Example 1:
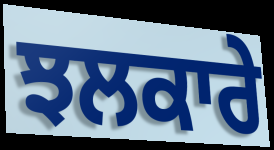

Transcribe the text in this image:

ਝਲਕਾਰੇ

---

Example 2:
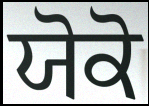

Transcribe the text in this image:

ਯੋਕੋ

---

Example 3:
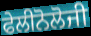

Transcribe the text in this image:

ਫੇਲੀਨੋਲੋਜੀ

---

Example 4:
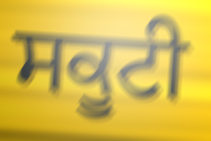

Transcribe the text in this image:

ਸਕੂਟੀ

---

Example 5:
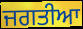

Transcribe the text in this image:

ਜਗਤੀਆ